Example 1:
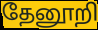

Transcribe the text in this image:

தேனூறி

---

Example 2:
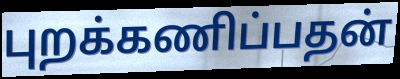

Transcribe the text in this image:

புறக்கணிப்பதன்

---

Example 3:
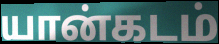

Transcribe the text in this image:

யான்கடம்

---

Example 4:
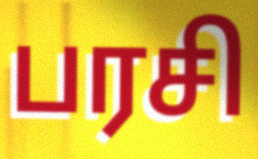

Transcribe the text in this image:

பரசி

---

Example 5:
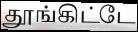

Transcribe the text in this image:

தூங்கிட்டே